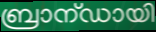
ബ്രാന്ഡായി